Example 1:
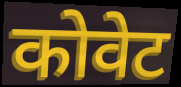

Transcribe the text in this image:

कोवेट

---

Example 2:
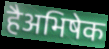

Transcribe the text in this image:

हैअभिषेक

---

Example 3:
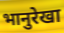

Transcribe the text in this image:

भानुरेखा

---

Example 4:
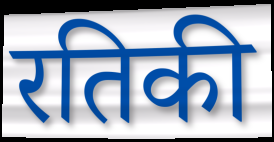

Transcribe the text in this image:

रतिकी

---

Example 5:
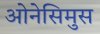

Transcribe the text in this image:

ओनेसिमुस